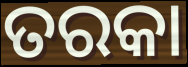
ତରକା